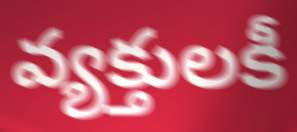
వ్యక్తులకీ